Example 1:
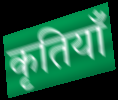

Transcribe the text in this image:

कृतियाँ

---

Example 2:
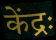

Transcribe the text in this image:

केंद्रः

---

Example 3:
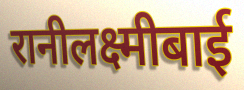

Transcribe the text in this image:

रानीलक्ष्मीबाई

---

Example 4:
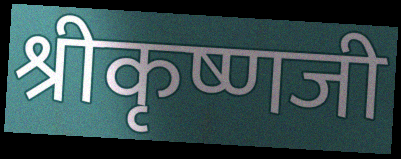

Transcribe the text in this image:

श्रीकृष्णजी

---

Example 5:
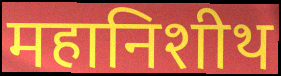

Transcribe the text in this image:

महानिशीथ